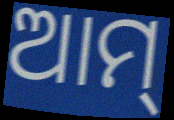
ଆମ୍